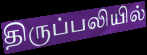
திருப்பலியில்